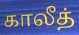
காலீத்